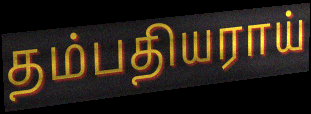
தம்பதியராய்